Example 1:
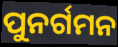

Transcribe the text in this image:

ପୁନର୍ଗମନ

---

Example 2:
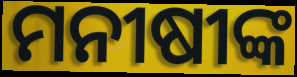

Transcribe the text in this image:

ମନୀଷୀଙ୍କ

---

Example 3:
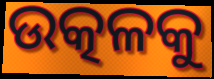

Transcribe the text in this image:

ଉତ୍କଳକୁ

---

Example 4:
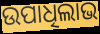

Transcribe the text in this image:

ଉପାଧିଲାଭ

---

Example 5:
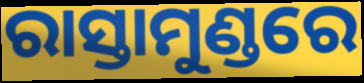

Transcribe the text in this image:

ରାସ୍ତାମୁଣ୍ଡରେ